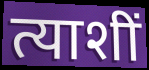
त्याशीं